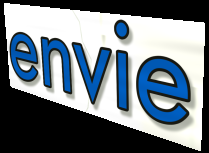
envie